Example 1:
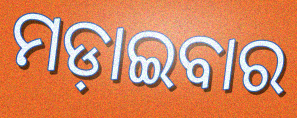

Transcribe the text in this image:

ମଡ଼ାଇବାର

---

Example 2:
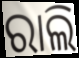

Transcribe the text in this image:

ରାଲି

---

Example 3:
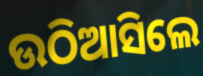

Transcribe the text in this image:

ଉଠିଆସିଲେ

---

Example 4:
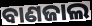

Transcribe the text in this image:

ବାଣଜାଲ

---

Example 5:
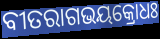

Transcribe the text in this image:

ବୀତରାଗଭୟକ୍ରୋଧଃ